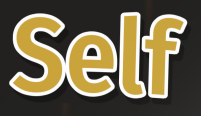
Self